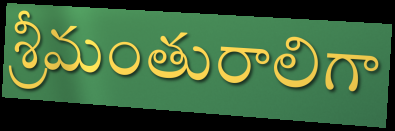
శ్రీమంతురాలిగా